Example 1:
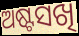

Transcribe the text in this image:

ଅଷ୍ଟସଖି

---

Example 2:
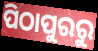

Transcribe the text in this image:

ପିଠାପୁରରୁ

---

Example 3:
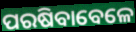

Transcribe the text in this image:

ପରଷିବାବେଳେ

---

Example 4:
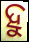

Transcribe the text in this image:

ହୁ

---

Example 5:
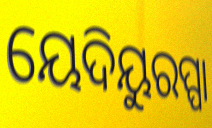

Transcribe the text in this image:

ୟେଦିୟୁରପ୍ପା